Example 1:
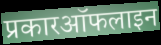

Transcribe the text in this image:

प्रकारऑफलाइन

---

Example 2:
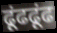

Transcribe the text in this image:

ढूंढढूंढ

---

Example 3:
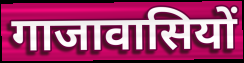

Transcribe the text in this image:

गाजावासियों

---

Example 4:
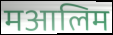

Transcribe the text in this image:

मआलिम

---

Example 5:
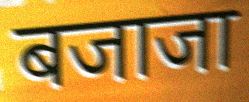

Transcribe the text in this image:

बजाजा